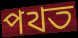
পথত